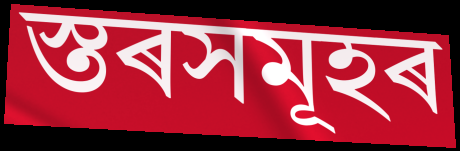
স্তৰসমূহৰ